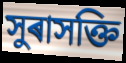
সুৰাসক্তি